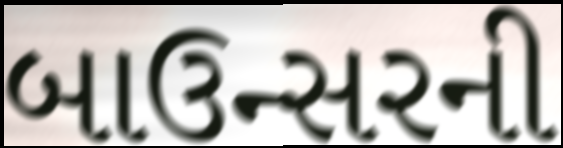
બાઉન્સરની